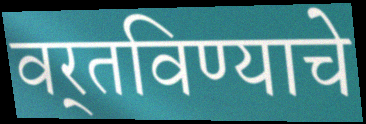
वर्तविण्याचे